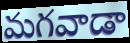
మగవాడా